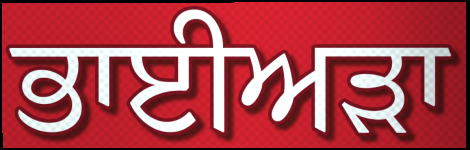
ਭਾਈਅੜਾ